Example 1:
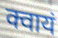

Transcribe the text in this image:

क्वायं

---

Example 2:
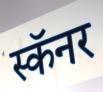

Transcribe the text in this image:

स्कॅनर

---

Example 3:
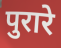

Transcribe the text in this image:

पुरारे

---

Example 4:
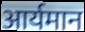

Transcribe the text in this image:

आर्यमान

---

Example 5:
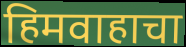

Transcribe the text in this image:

हिमवाहाचा